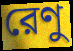
রেণু